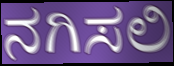
ನಗಿಸಲಿ